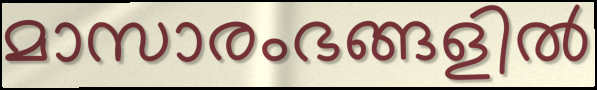
മാസാരംഭങ്ങളിൽ